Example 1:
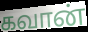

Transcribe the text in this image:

கவான்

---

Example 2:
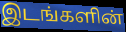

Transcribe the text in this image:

இடங்களின்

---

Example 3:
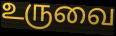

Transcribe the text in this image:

உருவை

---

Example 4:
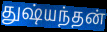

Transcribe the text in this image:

துஷ்யந்தன்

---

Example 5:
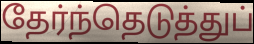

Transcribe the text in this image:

தேர்ந்தெடுத்துப்